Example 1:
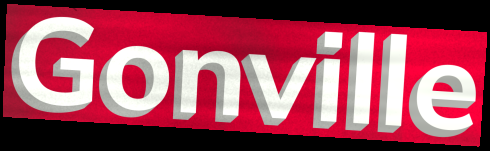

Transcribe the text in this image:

Gonville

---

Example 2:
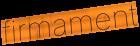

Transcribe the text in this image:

firmament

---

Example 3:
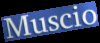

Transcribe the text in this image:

Muscio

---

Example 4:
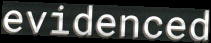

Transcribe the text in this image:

evidenced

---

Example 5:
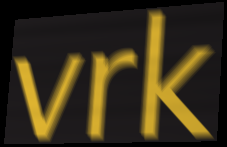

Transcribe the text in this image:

vrk